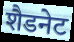
शैडनेट